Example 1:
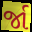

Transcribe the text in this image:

ર્જા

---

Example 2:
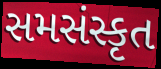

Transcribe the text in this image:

સમસંસ્કૃત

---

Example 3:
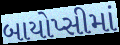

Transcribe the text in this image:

બાયોપ્સીમાં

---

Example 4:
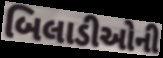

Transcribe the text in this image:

બિલાડીઓની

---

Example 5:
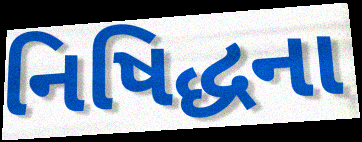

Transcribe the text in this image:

નિષિદ્ધના